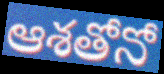
ఆశతోనో